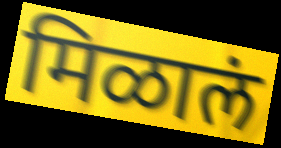
मिळालं